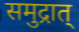
समुद्रात्